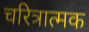
चरित्रात्मक